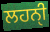
ਲਹਨੑੀ